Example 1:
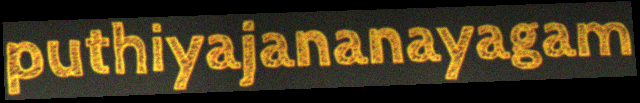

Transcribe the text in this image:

puthiyajananayagam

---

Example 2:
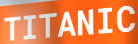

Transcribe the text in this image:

TITANIC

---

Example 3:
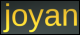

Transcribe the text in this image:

joyan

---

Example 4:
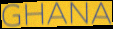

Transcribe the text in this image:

GHANA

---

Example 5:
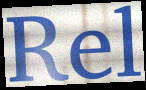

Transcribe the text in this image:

Rel